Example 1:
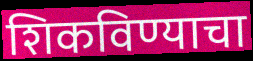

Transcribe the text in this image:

शिकविण्याचा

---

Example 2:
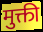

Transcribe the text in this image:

मुक्ती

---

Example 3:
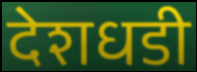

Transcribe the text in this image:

देशधडी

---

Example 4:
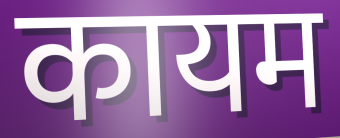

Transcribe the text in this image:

कायम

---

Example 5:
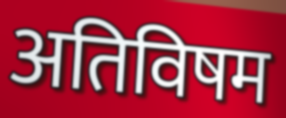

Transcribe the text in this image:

अतिविषम